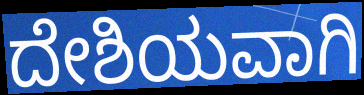
ದೇಶಿಯವಾಗಿ